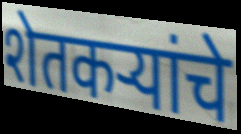
शेतकर्‍यांचे